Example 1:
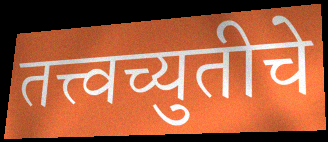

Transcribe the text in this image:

तत्त्वच्युतीचे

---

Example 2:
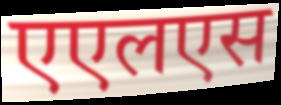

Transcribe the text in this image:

एएलएस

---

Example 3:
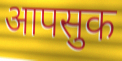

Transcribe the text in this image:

आपसुक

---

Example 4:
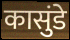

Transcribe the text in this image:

कासुंडे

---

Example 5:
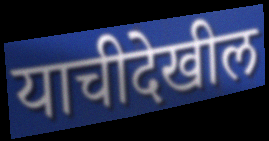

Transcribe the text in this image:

याचीदेखील